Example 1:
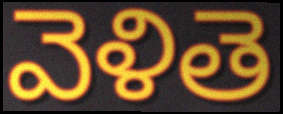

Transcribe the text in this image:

వెళితె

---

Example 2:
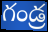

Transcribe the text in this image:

గండ్ర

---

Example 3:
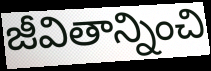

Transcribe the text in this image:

జీవితాన్నించి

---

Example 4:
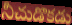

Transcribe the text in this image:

నీచుడొకడు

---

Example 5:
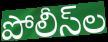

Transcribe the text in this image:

పోలీస్‌ల